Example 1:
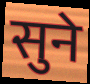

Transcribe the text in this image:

सुने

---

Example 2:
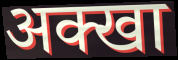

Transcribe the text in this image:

अक्खा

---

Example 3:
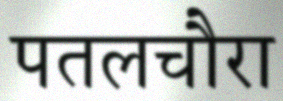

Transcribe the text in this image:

पतलचौरा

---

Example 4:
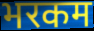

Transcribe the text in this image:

भरकम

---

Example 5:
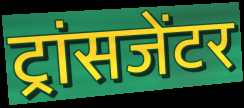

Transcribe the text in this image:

ट्रांसजेंटर